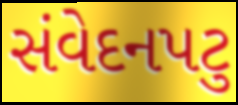
સંવેદનપટુ